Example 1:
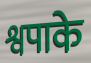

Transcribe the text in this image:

श्वपाके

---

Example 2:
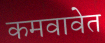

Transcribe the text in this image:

कमवावेत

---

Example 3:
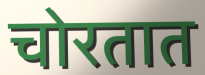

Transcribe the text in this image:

चोरतात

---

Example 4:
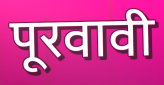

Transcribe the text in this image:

पूरवावी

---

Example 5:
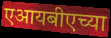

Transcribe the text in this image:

एआयबीएच्या